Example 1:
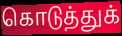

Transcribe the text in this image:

கொடுத்துக்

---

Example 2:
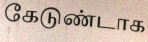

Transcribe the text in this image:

கேடுண்டாக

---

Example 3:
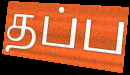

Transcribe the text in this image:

தப்ப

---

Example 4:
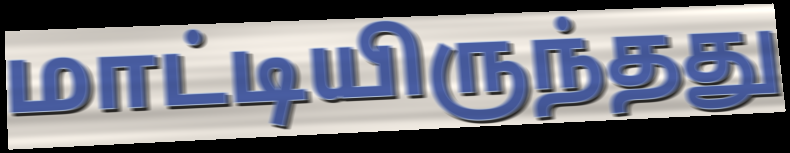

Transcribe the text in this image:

மாட்டியிருந்தது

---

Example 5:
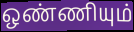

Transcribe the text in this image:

ஒண்ணியும்